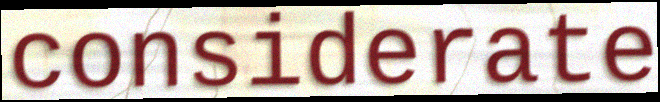
considerate